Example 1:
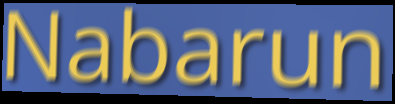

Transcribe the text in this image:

Nabarun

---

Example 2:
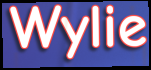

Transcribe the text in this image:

Wylie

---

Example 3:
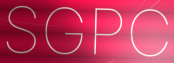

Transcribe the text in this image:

SGPC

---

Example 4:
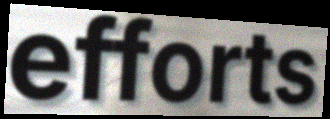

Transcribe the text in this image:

efforts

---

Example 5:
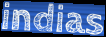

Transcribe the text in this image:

indias